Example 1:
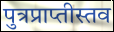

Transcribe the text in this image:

पुत्रप्राप्तीस्तव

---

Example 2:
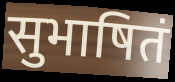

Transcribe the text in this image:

सुभाषितं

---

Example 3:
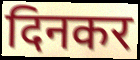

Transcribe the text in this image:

दिनकर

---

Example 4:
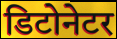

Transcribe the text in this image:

डिटोनेटर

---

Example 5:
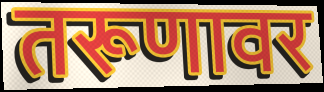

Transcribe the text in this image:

तरूणावर